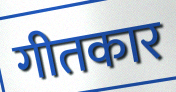
गीतकार